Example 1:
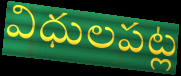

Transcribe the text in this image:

విధులపట్ల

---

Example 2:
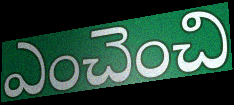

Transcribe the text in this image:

ఎంచెంచి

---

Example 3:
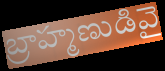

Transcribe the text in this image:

బ్రాహ్మణుడివై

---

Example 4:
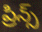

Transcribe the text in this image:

ప్రిన్స్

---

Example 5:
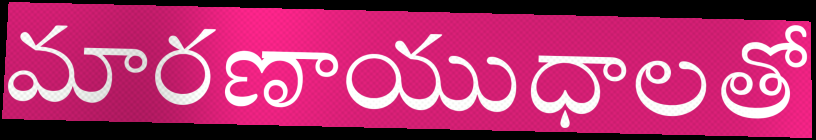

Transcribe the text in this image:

మారణాయుధాలతో